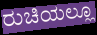
ರುಚಿಯಲ್ಲೂ